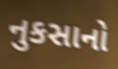
નુકસાનો